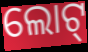
ଲୋଟ୍